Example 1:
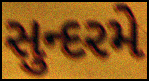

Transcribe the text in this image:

સુન્દરમે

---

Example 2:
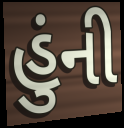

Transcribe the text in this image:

હુંની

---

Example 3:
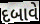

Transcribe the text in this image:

દબાવે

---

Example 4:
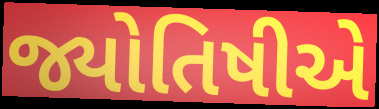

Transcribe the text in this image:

જ્યોતિષીએ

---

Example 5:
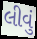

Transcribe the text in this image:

લીવું